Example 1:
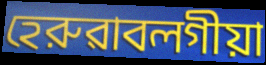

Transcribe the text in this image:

হেৰুৱাবলগীয়া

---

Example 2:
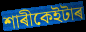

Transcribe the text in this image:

শাৰীকেইটাৰ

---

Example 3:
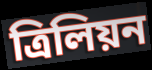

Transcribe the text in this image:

ত্ৰিলিয়ন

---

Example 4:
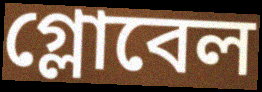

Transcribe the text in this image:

গ্লোবেল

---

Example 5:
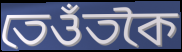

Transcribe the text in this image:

তেওঁতকৈ